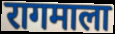
रागमाला